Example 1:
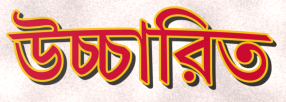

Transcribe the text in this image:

উচ্চারিত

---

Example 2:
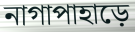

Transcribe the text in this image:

নাগাপাহাড়ে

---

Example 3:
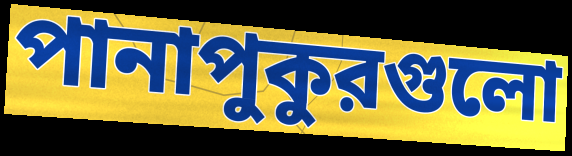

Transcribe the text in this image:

পানাপুকুরগুলো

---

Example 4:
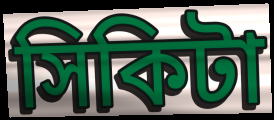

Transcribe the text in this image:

সিকিটা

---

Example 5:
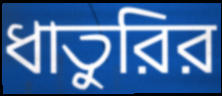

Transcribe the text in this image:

ধাতুরির